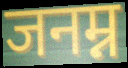
जनम्न